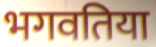
भगवतिया